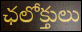
ఛలోక్తులు